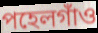
পহেলগাঁও